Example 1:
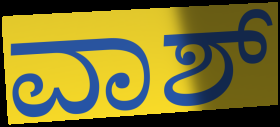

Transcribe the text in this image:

ವಾಶ್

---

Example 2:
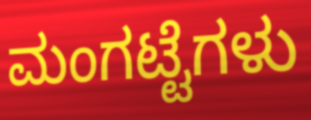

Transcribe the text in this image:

ಮಂಗಟ್ಟೆಗಳು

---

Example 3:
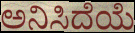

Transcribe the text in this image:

ಅನಿಸಿದೆಯೆ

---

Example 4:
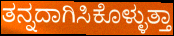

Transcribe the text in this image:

ತನ್ನದಾಗಿಸಿಕೊಳ್ಳುತ್ತಾ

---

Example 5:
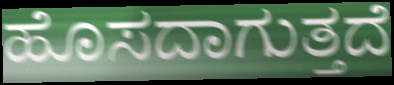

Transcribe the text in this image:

ಹೊಸದಾಗುತ್ತದೆ